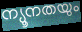
ന്യൂനതയും